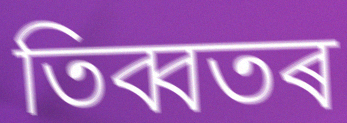
তিব্বতৰ